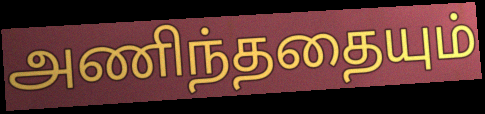
அணிந்ததையும்